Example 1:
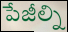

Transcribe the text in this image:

పేజీల్ని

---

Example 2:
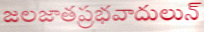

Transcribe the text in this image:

జలజాతప్రభవాదులున్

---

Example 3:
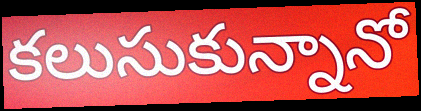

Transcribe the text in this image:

కలుసుకున్నానో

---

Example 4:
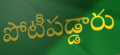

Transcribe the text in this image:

పోటీపడ్డారు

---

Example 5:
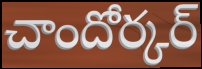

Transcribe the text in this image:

చాందోర్కర్